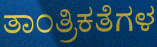
ತಾಂತ್ರಿಕತೆಗಳ